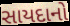
સાયદાનો